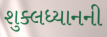
શુક્લધ્યાનની